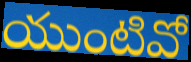
యుంటివో